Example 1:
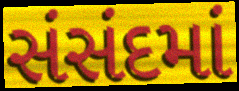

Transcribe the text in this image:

સંસંદમાં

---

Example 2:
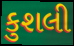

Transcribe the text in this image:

કુશલી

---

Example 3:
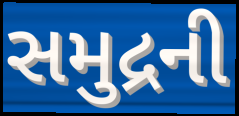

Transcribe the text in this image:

સમુદ્રની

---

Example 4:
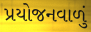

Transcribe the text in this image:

પ્રયોજનવાળું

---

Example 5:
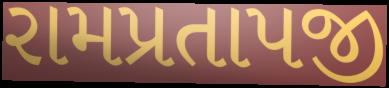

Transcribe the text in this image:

રામપ્રતાપજી